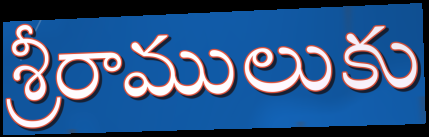
శ్రీరాములుకు